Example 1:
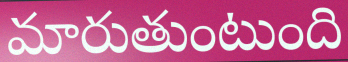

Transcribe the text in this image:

మారుతుంటుంది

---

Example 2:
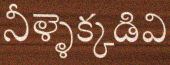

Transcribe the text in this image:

నీళ్ళెక్కడివి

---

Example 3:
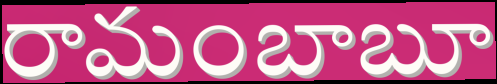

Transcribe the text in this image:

రామంబాబూ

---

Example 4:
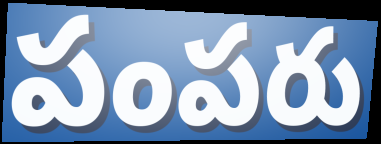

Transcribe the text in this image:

పంపరు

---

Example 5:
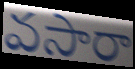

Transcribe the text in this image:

వసారా